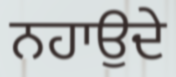
ਨਹਾਉਦੇ